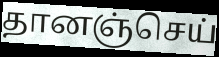
தானஞ்செய்